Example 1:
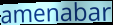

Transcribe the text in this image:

amenabar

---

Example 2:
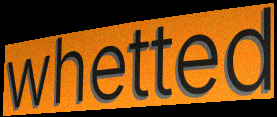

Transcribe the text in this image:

whetted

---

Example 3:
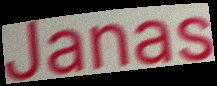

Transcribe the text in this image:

Janas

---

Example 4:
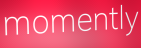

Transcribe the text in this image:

momently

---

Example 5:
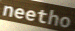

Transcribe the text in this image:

neetho